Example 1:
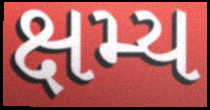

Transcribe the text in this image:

ક્ષમ્ય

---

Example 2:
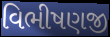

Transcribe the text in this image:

વિભીષણજી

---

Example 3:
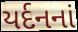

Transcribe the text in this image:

યર્દનનાં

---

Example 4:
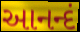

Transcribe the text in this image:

આનન્દં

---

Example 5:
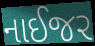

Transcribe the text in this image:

નાઈજર